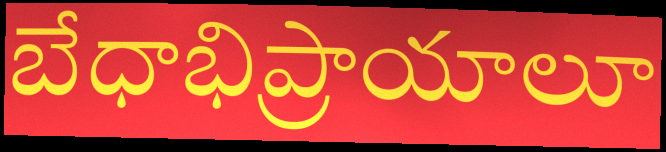
బేధాభిప్రాయాలూ